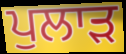
ਪੁਲਾੜ